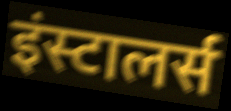
इंस्टालर्स